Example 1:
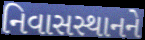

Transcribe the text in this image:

નિવાસસ્થાનને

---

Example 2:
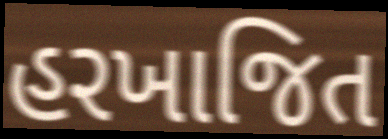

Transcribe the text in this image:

હરખાજિત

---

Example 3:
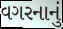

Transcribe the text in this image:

વગરનાનું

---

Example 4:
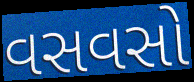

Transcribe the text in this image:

વસવસો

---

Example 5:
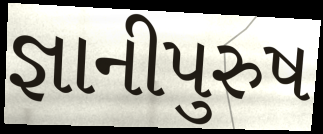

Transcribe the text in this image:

જ્ઞાનીપુરુષ